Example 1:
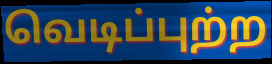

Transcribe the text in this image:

வெடிப்புற்ற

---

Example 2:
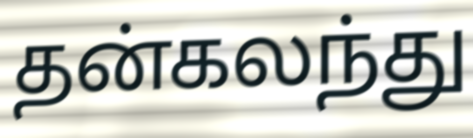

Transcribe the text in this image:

தன்கலந்து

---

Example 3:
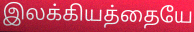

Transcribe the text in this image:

இலக்கியத்தையே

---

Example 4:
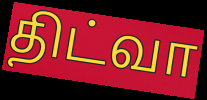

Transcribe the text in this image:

திட்வா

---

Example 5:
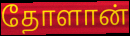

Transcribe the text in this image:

தோளான்